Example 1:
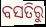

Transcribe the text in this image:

ବସତିରୁ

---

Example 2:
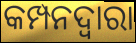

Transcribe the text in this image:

କମ୍ପନଦ୍ୱାରା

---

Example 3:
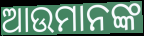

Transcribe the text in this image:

ଆଉମାନଙ୍କ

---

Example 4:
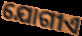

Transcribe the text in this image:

ଯୋଗୀଏ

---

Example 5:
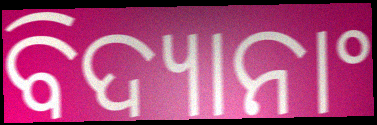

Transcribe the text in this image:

ବିଦ୍ୟାନାଂ